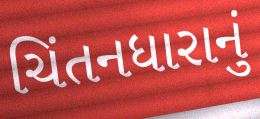
ચિંતનધારાનું